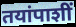
तयांपाशीं